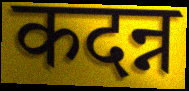
कदन्न